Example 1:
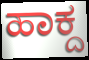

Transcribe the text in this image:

ಹಾಕ್ದ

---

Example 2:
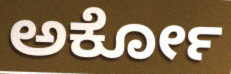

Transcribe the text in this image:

ಅರ್ಕೋ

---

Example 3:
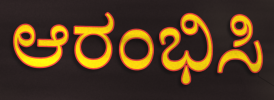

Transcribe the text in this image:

ಆರಂಭಿಸಿ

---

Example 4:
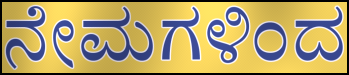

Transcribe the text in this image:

ನೇಮಗಳಿಂದ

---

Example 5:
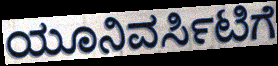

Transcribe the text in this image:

ಯೂನಿವರ್ಸಿಟಿಗೆ